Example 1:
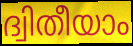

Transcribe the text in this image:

ദ്വിതീയാം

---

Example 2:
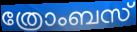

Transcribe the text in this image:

ത്രോംബസ്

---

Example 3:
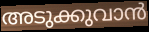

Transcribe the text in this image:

അടുക്കുവാൻ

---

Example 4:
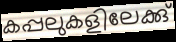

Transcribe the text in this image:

കപ്പലുകളിലേക്കു്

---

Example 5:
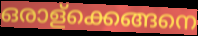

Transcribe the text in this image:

ഒരാള്ക്കെങ്ങനെ